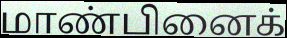
மாண்பினைக்